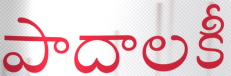
పాదాలకీ